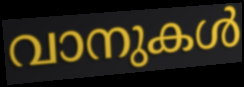
വാനുകൾ